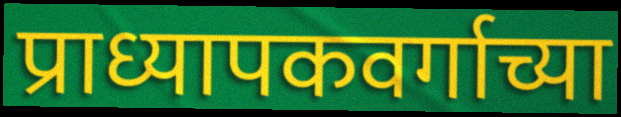
प्राध्यापकवर्गाच्या